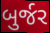
બુર્જર